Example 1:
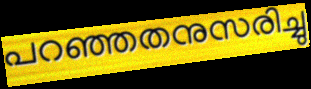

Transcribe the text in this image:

പറഞ്ഞതനുസരിച്ചു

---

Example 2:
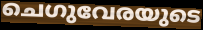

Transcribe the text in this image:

ചെഗുവേരയുടെ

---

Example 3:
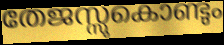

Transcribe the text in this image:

തേജസ്സുകൊണ്ടും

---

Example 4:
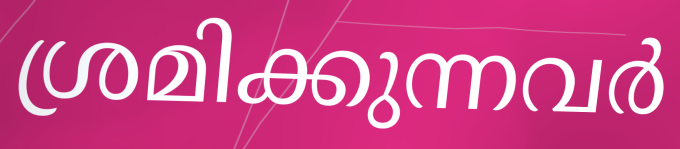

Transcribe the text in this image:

ശ്രമിക്കുന്നവർ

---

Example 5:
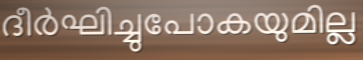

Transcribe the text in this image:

ദീർഘിച്ചുപോകയുമില്ല